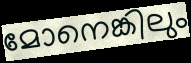
മോനെങ്കിലും